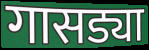
गासड्या